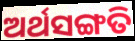
ଅର୍ଥସଙ୍ଗତି